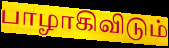
பாழாகிவிடும்